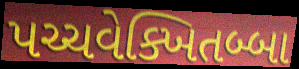
પચ્ચવેક્ખિતબ્બા